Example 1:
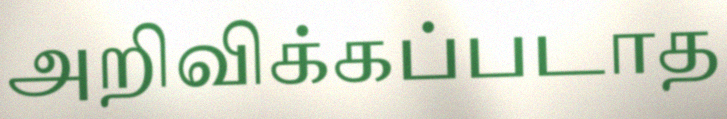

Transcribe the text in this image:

அறிவிக்கப்படாத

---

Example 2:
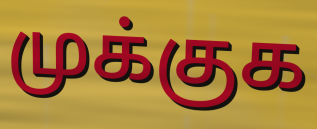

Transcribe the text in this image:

முக்குக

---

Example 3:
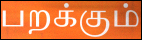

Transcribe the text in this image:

பறக்கும்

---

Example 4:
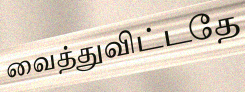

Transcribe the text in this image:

வைத்துவிட்டதே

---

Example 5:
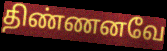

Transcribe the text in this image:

திண்ணனவே